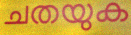
ചതയുക